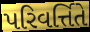
પરિવર્ત્તિતે